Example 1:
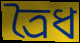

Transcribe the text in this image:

ত্রৈধ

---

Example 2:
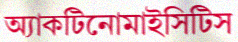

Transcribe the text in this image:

অ্যাকটিনোমাইসিটিস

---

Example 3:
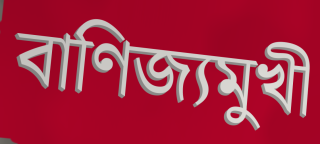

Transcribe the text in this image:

বাণিজ্যমুখী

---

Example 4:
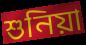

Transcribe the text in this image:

শুনিয়া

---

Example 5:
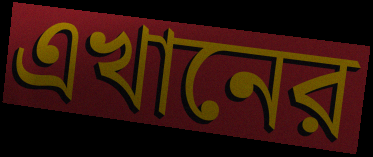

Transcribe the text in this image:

এখানের